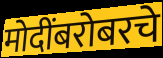
मोदींबरोबरचे